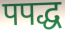
पपद्ध